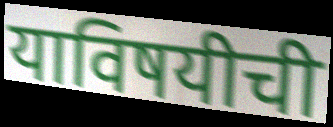
याविषयीची